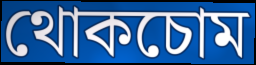
থোকচোম